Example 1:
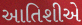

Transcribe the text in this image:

આતિશીએ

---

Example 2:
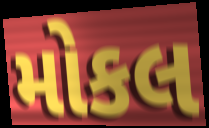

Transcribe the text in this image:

મોકલ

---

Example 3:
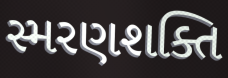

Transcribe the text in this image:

સ્મરણશક્તિ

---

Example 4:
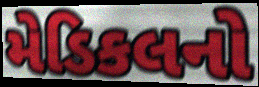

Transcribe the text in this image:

મેડિકલનો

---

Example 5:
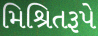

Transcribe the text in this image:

મિશ્રિતરૂપે